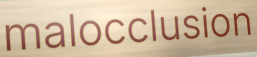
malocclusion